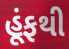
હૂંફથી